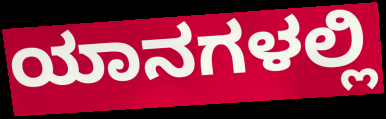
ಯಾನಗಳಲ್ಲಿ